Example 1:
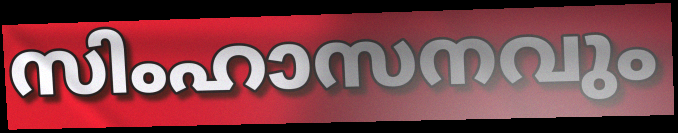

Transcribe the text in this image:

സിംഹാസനവും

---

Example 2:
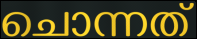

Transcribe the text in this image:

ചൊന്നത്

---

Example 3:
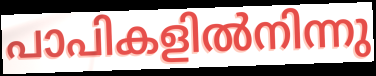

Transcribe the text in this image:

പാപികളിൽനിന്നു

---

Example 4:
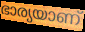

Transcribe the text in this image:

ഭാര്യയാണ്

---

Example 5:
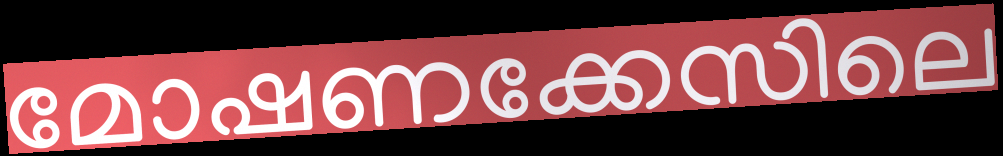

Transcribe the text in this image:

മോഷണക്കേസിലെ